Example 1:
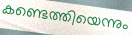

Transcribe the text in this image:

കണ്ടെത്തിയെന്നും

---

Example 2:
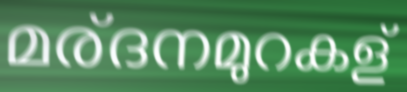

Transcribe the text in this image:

മര്ദനമുറകള്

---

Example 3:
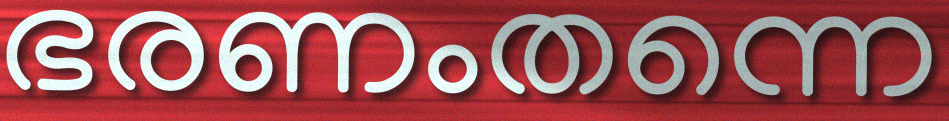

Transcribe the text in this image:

ഭരണംതന്നെ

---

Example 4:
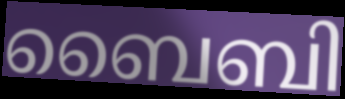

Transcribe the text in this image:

ബൈബി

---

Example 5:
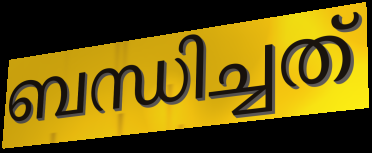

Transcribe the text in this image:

ബന്ധിച്ചത്